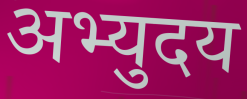
अभ्युदय